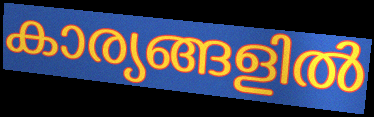
കാര്യങ്ങളിൽ